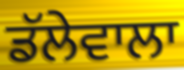
ਡੱਲੇਵਾਲਾ